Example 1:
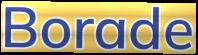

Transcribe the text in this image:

Borade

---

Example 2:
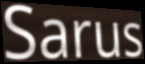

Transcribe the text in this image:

Sarus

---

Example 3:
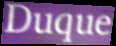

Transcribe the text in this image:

Duque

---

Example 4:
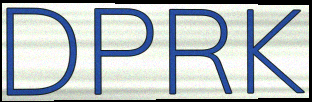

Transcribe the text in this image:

DPRK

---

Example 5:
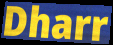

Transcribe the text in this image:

Dharr